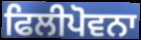
ਫਿਲੀਪੋਵਨਾ